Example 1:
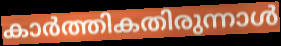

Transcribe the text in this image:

കാർത്തികതിരുന്നാൾ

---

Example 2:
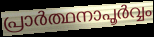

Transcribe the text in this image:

പ്രാർത്ഥനാപൂർവ്വം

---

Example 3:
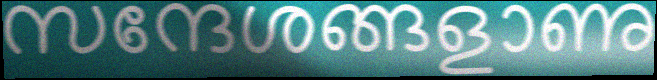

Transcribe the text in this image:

സന്ദേശങ്ങളാണു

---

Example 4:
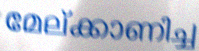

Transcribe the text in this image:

മേല്ക്കാണിച്ച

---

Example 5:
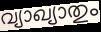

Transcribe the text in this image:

വ്യാഖ്യാതും